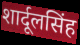
शार्दूलसिंह